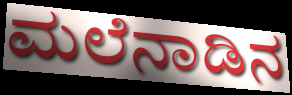
ಮಲೆನಾಡಿನ